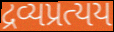
દ્રવ્યપ્રત્યય